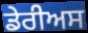
ਡੇਰੀਅਸ